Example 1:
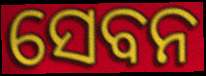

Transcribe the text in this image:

ସେବନ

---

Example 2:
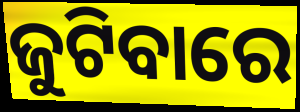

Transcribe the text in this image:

ଜୁଟିବାରେ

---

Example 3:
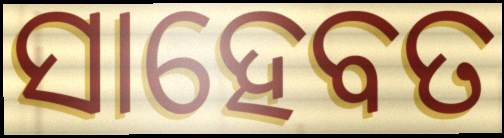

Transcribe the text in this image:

ସାହେବତ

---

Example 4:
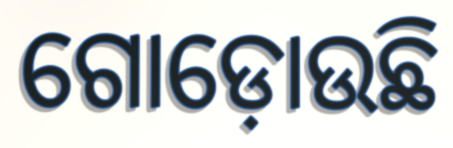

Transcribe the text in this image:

ଗୋଡ଼ୋଉଛି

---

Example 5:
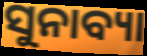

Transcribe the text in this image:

ସୁନାବ୍ୟା